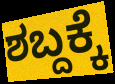
ಶಬ್ದಕ್ಕೆ